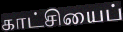
காட்சியைப்